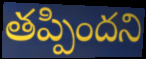
తప్పిందని